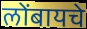
लोंबायचे